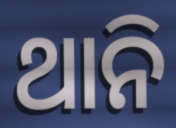
ଥାନି